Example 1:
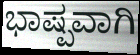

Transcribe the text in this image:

ಭಾಷ್ಪವಾಗಿ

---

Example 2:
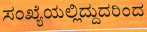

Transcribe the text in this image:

ಸಂಖ್ಯೆಯಲ್ಲಿದ್ದುದರಿಂದ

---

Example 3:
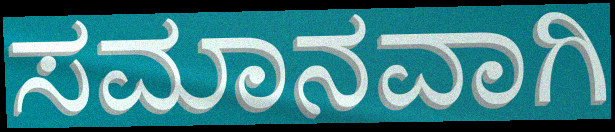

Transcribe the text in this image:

ಸಮಾನವಾಗಿ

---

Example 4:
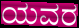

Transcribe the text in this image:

ಯವರ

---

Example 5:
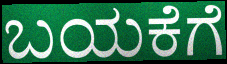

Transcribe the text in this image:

ಬಯಕೆಗೆ